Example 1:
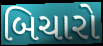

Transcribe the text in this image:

બિચારો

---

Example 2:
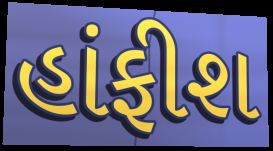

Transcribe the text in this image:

હાંફીશ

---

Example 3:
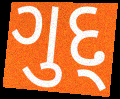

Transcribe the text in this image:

ગુદ્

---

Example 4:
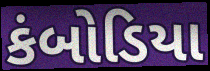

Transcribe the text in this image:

કંબોડિયા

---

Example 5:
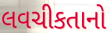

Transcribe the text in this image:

લવચીકતાનો